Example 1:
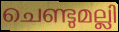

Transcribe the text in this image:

ചെണ്ടുമല്ലി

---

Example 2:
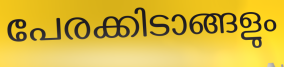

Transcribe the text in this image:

പേരക്കിടാങ്ങളും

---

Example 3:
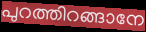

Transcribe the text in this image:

പുറത്തിറങ്ങാനേ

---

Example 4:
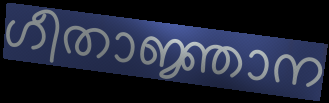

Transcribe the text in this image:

ഗീതാജ്ഞാന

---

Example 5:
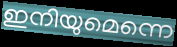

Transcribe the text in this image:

ഇനിയുമെന്നെ